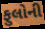
ફુલોની